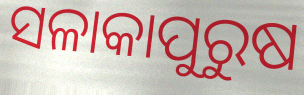
ସଳାକାପୁରୁଷ